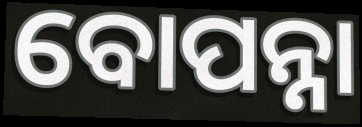
ବୋପନ୍ନା